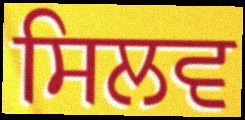
ਸਿਲਵ